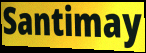
Santimay